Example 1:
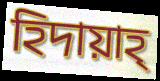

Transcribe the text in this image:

হিদায়াহ্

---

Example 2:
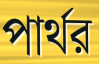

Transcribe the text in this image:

পার্থর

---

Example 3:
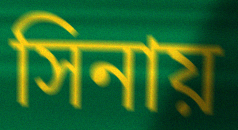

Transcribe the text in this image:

সিনায়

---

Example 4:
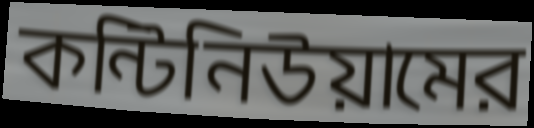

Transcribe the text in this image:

কন্টিনিউয়ামের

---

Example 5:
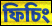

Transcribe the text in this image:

ফিচিং